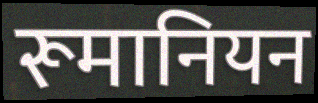
रूमानियन